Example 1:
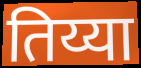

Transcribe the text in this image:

तिय्या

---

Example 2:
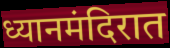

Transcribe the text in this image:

ध्यानमंदिरात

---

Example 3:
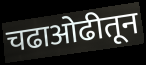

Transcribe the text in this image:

चढाओढीतून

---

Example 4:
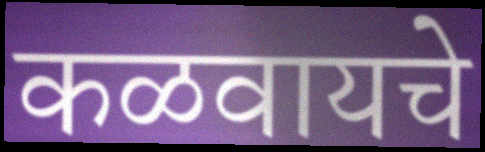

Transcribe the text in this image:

कळवायचे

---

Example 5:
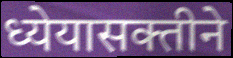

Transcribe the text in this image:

ध्येयासक्तीने